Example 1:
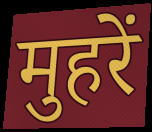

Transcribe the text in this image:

मुहरें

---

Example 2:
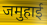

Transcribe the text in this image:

जमुहाई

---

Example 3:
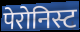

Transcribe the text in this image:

पेरोनिस्ट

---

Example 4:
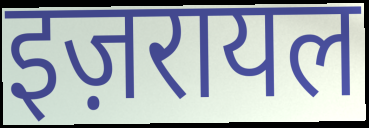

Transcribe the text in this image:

इज़रायल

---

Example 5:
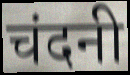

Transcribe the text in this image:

चंदनी